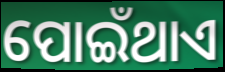
ପୋଇଁଥାଏ